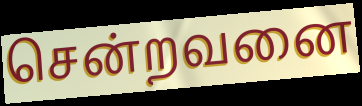
சென்றவனை